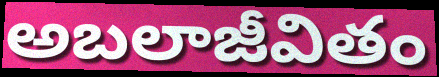
అబలాజీవితం